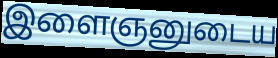
இளைஞனுடைய